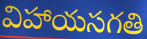
విహాయసగతి